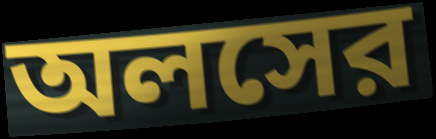
অলসের